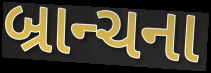
બ્રાન્ચના